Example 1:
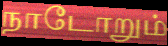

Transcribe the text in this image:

நாடோறும்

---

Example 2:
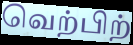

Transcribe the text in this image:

வெற்பிற்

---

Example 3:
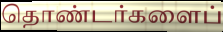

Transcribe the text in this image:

தொண்டர்களைப்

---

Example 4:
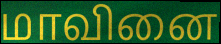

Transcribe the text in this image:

மாவினை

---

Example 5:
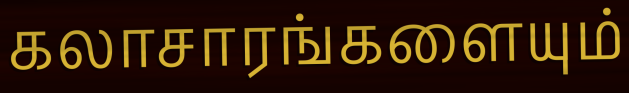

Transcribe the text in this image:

கலாசாரங்களையும்